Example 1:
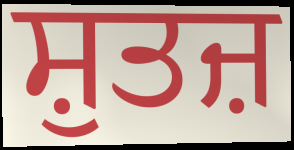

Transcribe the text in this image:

ਸ਼ੁਤਜ਼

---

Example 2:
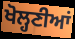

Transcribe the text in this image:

ਖੋਲ੍ਹਣੀਆਂ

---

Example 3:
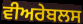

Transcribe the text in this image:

ਵੀਅਰੇਬਲਸ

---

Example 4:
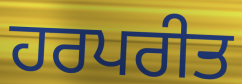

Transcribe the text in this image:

ਹਰਪਰੀਤ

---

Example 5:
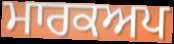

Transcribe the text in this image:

ਮਾਰਕਅਪ